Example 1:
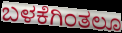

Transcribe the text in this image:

ಬಳಕೆಗಿಂತಲೂ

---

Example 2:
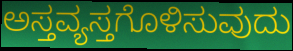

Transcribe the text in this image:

ಅಸ್ತವ್ಯಸ್ತಗೊಳಿಸುವುದು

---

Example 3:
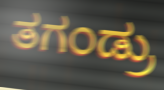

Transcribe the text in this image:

ತಗಂಡ್ರು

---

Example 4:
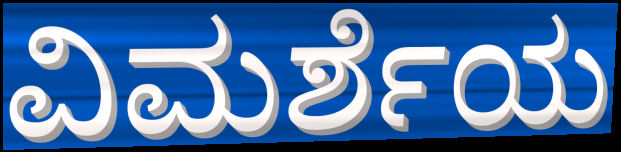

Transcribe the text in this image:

ವಿಮರ್ಶೆಯ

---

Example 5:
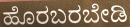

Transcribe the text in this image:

ಹೊರಬರಬೇಡಿ